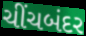
ચીંચબંદર